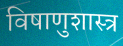
विषाणुशास्त्र